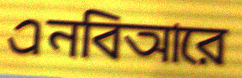
এনবিআরে